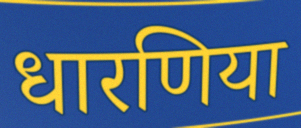
धारणिया